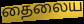
தைலைய